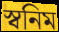
স্বনিম